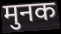
मुनक